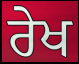
ਰੇਖ